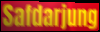
Safdarjung